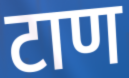
टाण